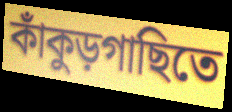
কাঁকুড়গাছিতে